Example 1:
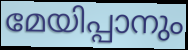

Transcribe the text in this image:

മേയിപ്പാനും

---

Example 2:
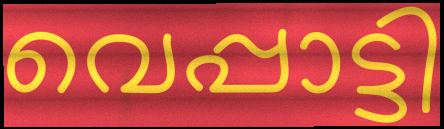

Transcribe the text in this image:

വെപ്പാട്ടി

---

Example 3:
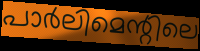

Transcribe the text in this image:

പാർലിമെന്റിലെ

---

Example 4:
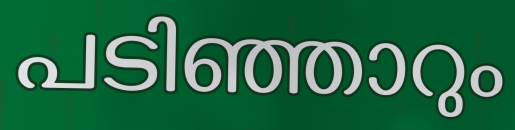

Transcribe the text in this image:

പടിഞ്ഞാറും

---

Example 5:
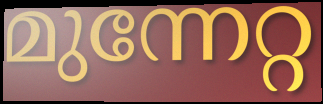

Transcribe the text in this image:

മുന്നേറ്റ